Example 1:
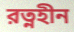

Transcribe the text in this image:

রত্নহীন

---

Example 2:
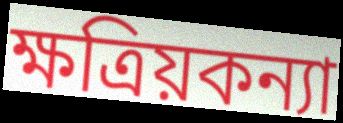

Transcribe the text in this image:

ক্ষত্রিয়কন্যা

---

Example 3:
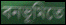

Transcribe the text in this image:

বনভূমিতে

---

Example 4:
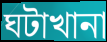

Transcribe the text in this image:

ঘটাখানা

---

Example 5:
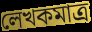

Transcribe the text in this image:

লেখকমাত্র